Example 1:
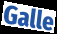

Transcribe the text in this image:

Galle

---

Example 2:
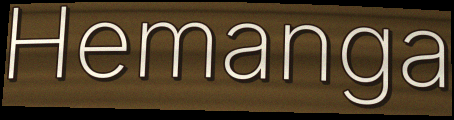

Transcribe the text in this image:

Hemanga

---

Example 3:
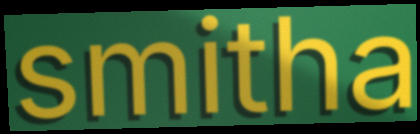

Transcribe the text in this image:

smitha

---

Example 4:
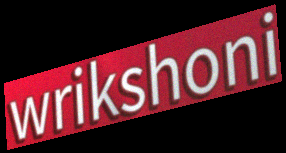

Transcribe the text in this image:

wrikshoni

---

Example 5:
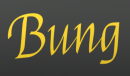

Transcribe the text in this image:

Bung